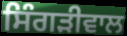
ਸਿੰਗੜੀਵਾਲ